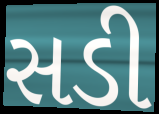
સડી